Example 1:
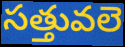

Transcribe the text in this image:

సత్తువలె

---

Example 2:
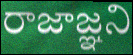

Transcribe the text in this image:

రాజాజ్ఞని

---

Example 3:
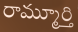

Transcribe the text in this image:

రామ్మూర్తి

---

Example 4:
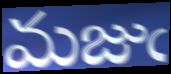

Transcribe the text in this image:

మజుఁ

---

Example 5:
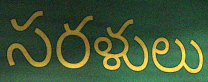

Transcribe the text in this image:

సరళులు